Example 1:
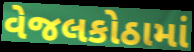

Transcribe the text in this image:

વેજલકોઠામાં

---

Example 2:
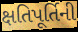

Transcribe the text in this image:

ક્ષતિપૂર્તિની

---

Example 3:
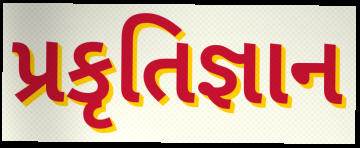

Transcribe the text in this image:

પ્રકૃતિજ્ઞાન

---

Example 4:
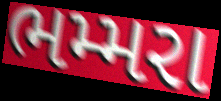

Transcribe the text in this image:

ભમ્મરા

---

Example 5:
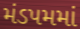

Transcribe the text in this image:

મંડપમમાં